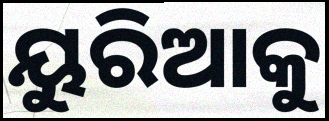
ୟୁରିଆକୁ